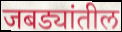
जबड्यांतील